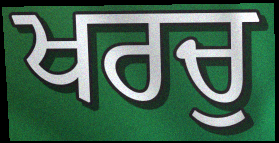
ਖਰਚੁ